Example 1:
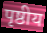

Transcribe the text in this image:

पृष्ठीय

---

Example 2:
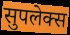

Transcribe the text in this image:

सुपलेक्स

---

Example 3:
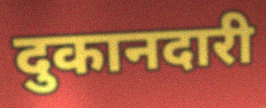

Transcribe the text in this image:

दुकानदारी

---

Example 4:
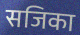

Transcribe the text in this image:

सजिका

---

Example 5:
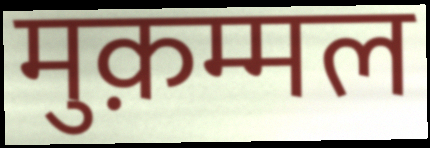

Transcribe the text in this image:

मुक़म्मल